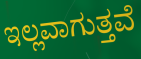
ಇಲ್ಲವಾಗುತ್ತವೆ